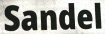
Sandel